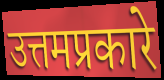
उत्तमप्रकारे